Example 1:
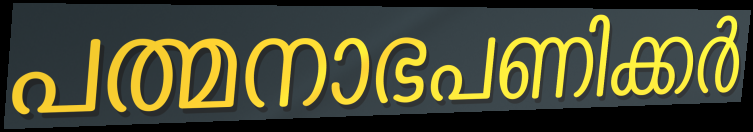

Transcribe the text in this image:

പത്മനാഭപണിക്കർ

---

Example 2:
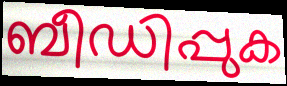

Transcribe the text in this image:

ബീഡിപ്പുക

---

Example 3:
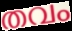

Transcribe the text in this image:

തവം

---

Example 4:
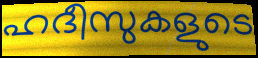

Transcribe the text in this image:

ഹദീസുകളുടെ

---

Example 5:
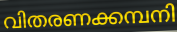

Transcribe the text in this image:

വിതരണക്കമ്പനി